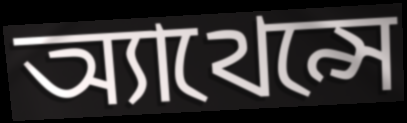
অ্যাথেন্সে